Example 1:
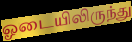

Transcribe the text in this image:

ஓடையிலிருந்து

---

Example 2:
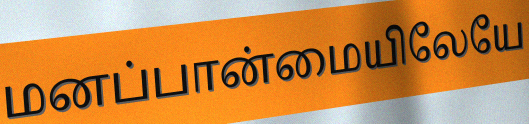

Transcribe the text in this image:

மனப்பான்மையிலேயே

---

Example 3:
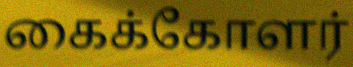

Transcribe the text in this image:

கைக்கோளர்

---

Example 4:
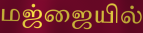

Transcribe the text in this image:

மஜ்ஜையில்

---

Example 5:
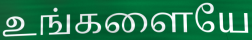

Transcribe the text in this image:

உங்களையே